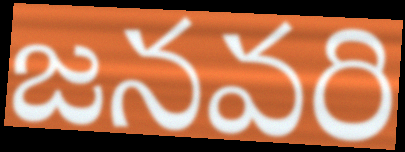
జనవరి